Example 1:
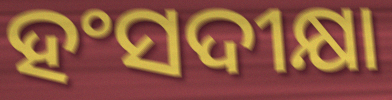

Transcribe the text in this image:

ହଂସଦୀକ୍ଷା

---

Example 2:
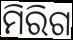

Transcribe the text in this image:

ମିରିଗ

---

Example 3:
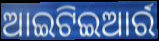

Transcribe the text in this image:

ଆଇଟିଇଆର୍ର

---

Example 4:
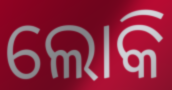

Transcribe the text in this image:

ଲୋକି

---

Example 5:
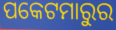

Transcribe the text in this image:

ପକେଟମାରୁର